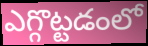
ఎగ్గొట్టడంలో